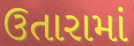
ઉતારામાં